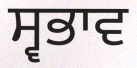
ਸ੍ਵਭਾਵ